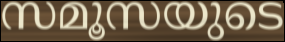
സമൂസയുടെ